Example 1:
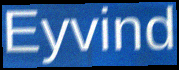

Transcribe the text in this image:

Eyvind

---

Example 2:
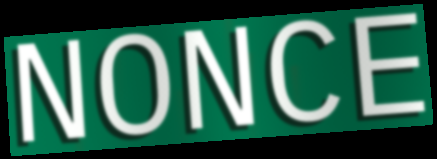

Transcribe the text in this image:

NONCE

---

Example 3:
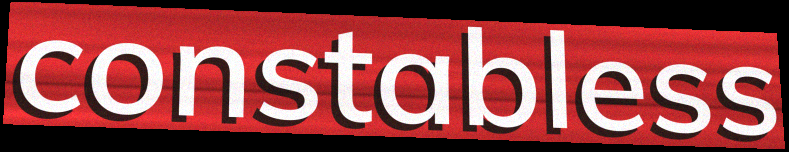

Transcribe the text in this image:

constabless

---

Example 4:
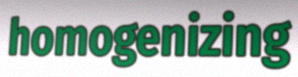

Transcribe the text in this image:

homogenizing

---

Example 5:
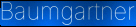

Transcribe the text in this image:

Baumgartner